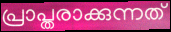
പ്രാപ്തരാക്കുന്നത്